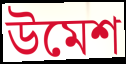
উমেশ